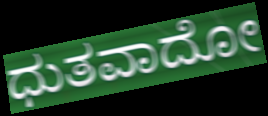
ಧುತವಾದೋ